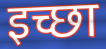
इच्छा